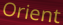
Orient